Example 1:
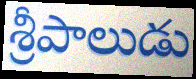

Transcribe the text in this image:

శ్రీపాలుడు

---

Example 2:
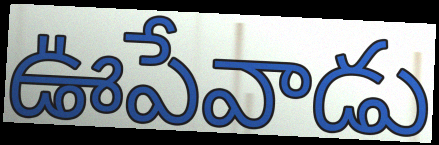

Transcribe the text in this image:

ఊపేవాడు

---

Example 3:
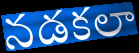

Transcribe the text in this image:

నడకలా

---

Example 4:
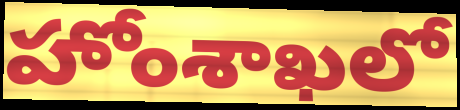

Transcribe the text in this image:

హోంశాఖలో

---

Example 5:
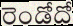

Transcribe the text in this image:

రెండోదో